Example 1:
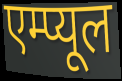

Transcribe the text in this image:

एम्प्यूल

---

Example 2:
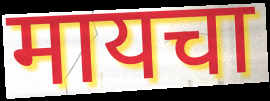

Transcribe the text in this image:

मायचा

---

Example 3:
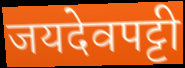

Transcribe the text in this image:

जयदेवपट्टी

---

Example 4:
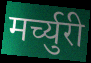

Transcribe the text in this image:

मर्च्युरी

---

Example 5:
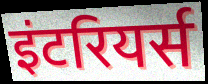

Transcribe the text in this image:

इंटरियर्स